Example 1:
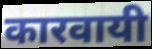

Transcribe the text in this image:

कारवायी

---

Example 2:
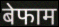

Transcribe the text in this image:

बेफाम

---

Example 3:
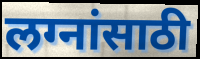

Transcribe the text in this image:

लग्नांसाठी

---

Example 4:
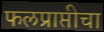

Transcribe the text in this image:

फलप्राप्तीचा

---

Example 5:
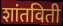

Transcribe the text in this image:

शांतविती